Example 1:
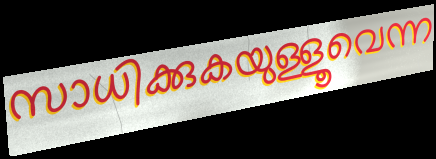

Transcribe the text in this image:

സാധിക്കുകയുള്ളൂവെന്ന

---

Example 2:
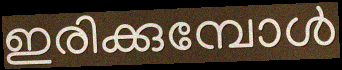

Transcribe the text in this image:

ഇരിക്കുമ്പോൾ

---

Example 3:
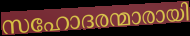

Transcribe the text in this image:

സഹോദരന്മാരായി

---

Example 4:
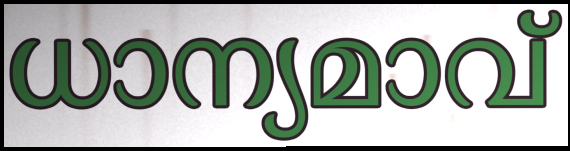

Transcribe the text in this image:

ധാന്യമാവ്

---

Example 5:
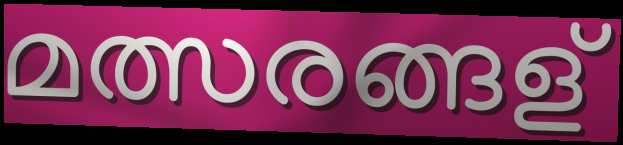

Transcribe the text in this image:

മത്സരങ്ങള്